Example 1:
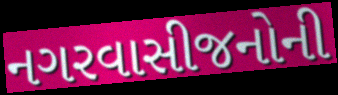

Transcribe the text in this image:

નગરવાસીજનોની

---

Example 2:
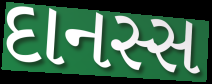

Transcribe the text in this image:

દાનસ્સ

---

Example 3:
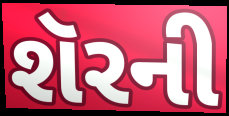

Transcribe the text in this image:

શૅરની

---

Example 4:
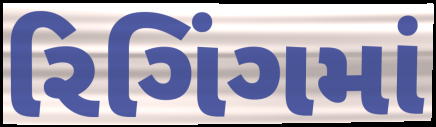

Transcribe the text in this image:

રિગિંગમાં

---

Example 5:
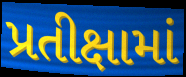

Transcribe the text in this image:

પ્રતીક્ષામાં